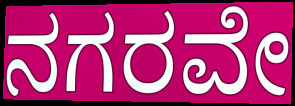
ನಗರವೇ